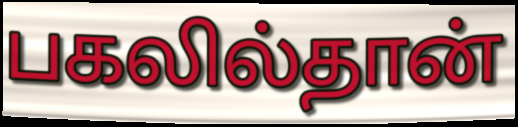
பகலில்தான்